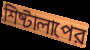
শিষ্টালাপের